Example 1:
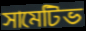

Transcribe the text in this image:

সামেটিভ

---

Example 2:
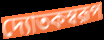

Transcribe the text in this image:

দ্যোতকস্বরূপ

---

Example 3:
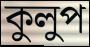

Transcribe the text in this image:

কুলুপ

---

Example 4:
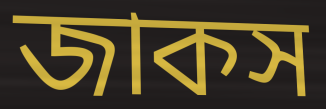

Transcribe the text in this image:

জাকস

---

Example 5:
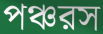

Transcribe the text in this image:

পঞ্চরস